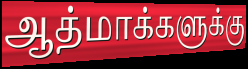
ஆத்மாக்களுக்கு